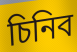
চিনিব